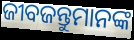
ଜୀବଜନ୍ତୁମାନଙ୍କ